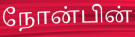
நோன்பின்